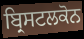
ਬ੍ਰਿਸਟਲਕੋਨ